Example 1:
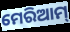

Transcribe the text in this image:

ମେରିଆମ୍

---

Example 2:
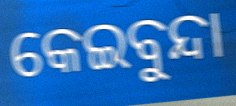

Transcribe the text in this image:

କେଇବୁନ୍ଦା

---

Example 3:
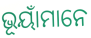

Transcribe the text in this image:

ଭୂୟାଁମାନେ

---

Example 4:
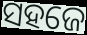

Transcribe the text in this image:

ସହଜେ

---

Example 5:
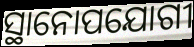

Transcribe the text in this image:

ସ୍ଥାନୋପଯୋଗୀ